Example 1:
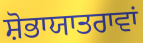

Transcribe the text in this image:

ਸ਼ੋਭਾਯਾਤਰਾਵਾਂ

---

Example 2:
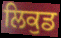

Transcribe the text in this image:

ਲਿਕੁਡ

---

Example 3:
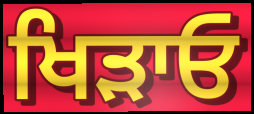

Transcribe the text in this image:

ਖਿੜਾਓ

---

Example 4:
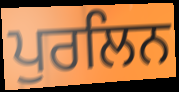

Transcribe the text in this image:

ਪੁਰਲਿਨ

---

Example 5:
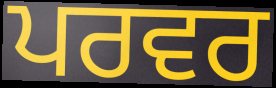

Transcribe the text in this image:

ਪਰਵਰ